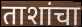
ताशांचा